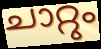
ചാറ്റും